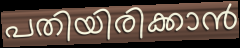
പതിയിരിക്കാൻ